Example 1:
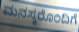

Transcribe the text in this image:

ಮನಸ್ಕರೊಂದಿಗೆ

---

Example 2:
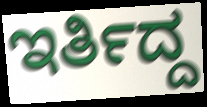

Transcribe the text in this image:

ಇರ್ತಿದ್ದ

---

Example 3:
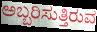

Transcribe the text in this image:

ಅಬ್ಬರಿಸುತ್ತಿರುವ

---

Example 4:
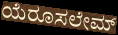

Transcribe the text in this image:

ಯೆರೂಸಲೇಮ್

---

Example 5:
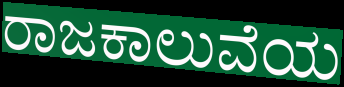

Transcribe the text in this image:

ರಾಜಕಾಲುವೆಯ